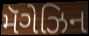
મૅગેઝિન